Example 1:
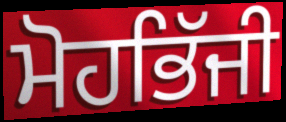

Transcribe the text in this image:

ਮੋਹਭਿੱਜੀ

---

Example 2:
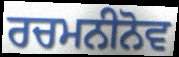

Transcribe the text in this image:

ਰਚਮਨੀਨੋਵ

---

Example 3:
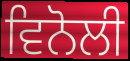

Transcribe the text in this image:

ਵਿਨੋਲੀ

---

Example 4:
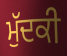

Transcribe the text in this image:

ਮੁੱਦਕੀ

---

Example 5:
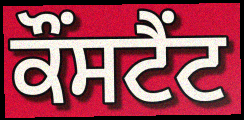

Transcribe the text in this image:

ਕੌਂਸਟੈਂਟ